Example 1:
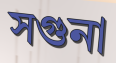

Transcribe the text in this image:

সগুনা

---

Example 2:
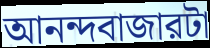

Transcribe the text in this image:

আনন্দবাজারটা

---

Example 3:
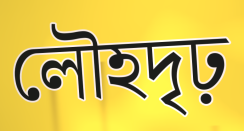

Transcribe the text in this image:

লৌহদৃঢ়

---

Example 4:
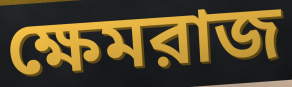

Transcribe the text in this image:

ক্ষেমরাজ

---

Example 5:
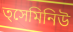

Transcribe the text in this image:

ত্সেমিনিউ